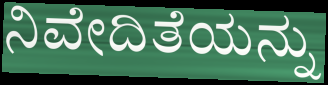
ನಿವೇದಿತೆಯನ್ನು